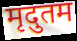
मृदुतम